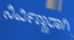
ನಿರ್ವಿಣ್ಣರಾಗಿ